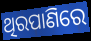
ଥିରପାଣିରେ